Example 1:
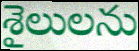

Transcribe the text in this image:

శైలులను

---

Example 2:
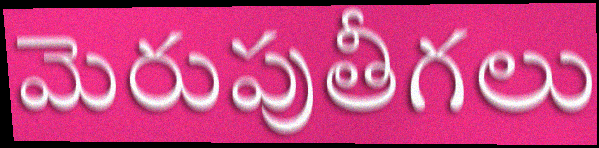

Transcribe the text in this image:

మెరుపుతీగలు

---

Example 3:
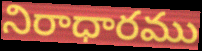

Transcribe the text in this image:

నిరాధారము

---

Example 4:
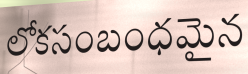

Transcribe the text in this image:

లోకసంబంధమైన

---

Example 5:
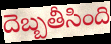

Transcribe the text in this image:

దెబ్బతీసింది